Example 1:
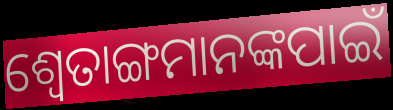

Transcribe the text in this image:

ଶ୍ୱେତାଙ୍ଗମାନଙ୍କପାଇଁ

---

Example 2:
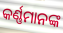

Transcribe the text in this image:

କର୍ଣ୍ଣମାନଙ୍କ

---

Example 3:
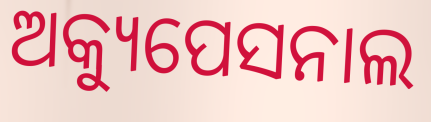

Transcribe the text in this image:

ଅକ୍ୟୁପେସନାଲ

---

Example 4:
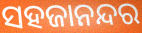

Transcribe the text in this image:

ସହଜାନନ୍ଦର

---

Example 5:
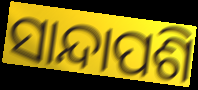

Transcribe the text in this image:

ସାନ୍ଦାପଶି